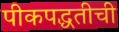
पीकपद्धतीची